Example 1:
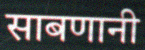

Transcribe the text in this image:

साबणानी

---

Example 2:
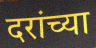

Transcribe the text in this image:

दरांच्या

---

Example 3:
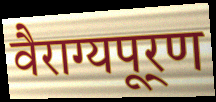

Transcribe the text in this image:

वैराग्यपूर्ण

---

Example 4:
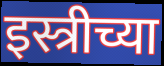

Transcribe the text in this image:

इस्त्रीच्या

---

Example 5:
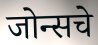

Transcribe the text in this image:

जोन्सचे